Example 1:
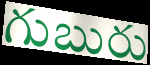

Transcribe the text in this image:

గుబురు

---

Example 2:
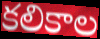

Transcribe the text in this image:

కలికాల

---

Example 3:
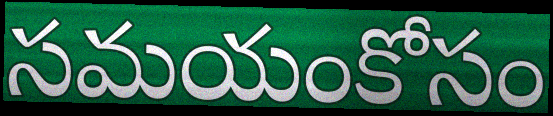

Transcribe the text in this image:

సమయంకోసం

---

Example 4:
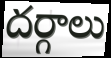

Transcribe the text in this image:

దర్గాలు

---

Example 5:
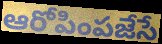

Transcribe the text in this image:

ఆరోపింపజేసే